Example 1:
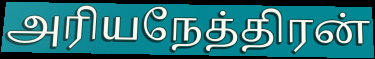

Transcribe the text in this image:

அரியநேத்திரன்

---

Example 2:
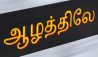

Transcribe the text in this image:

ஆழத்திலே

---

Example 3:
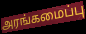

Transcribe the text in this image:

அரங்கமைப்பு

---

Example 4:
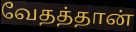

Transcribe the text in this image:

வேதத்தான்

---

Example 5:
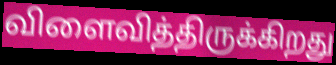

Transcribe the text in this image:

விளைவித்திருக்கிறது